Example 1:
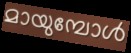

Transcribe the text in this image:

മായുമ്പോൾ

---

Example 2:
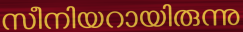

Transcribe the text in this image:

സീനിയറായിരുന്നു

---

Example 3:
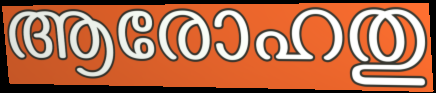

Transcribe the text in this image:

ആരോഹതു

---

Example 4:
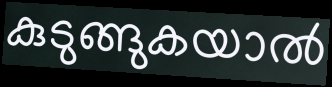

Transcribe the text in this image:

കുടുങ്ങുകയാൽ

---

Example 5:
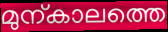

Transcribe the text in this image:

മുന്കാലത്തെ